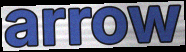
arrow